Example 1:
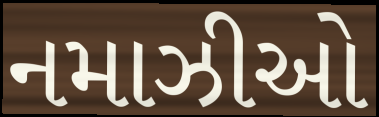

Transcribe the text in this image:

નમાઝીઓ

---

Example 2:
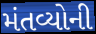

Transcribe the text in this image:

મંતવ્યોની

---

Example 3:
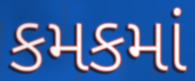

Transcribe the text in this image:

કમકમાં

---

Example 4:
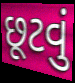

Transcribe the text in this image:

છૂટવું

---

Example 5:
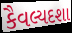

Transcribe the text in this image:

કૈવલ્યદશા